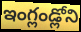
ఇంగ్లండ్లోని